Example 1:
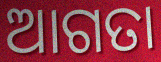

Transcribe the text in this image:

ଆଗତା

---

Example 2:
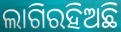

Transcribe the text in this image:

ଲାଗିରହିଅଛି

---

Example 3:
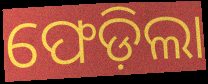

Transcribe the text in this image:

ଫେଡ଼ିଲା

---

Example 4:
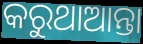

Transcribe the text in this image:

କରୁଥାଆନ୍ତା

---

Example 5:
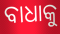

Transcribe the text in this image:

ବାଧାକୁ